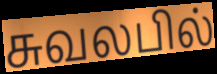
சுவலபில்